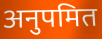
अनुपमित